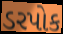
ડરપોક